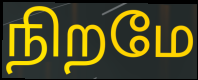
நிறமே